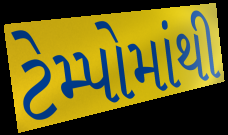
ટેમ્પોમાંથી